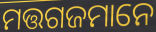
ମତ୍ତଗଜମାନେ